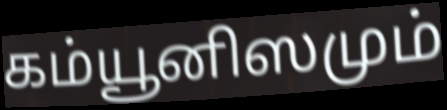
கம்யூனிஸமும்